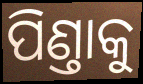
ପିଣ୍ତାକୁ